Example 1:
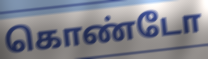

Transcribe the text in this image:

கொண்டோ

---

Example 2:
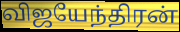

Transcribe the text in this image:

விஜயேந்திரன்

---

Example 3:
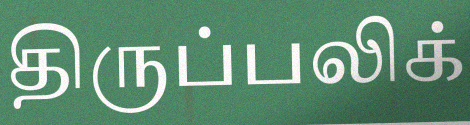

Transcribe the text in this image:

திருப்பலிக்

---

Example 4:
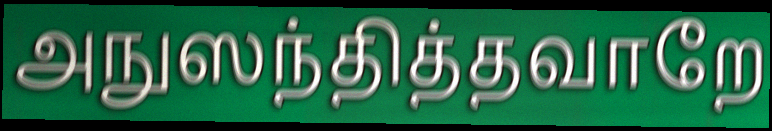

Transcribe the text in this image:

அநுஸந்தித்தவாறே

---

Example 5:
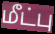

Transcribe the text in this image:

மீட்பு